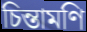
চিন্তামণি